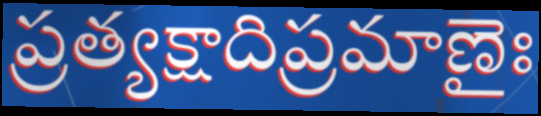
ప్రత్యక్షాదిప్రమాణైః